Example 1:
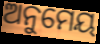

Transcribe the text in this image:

ଅନୁମେୟ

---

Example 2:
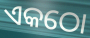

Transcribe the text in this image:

ଏକଠୋ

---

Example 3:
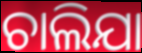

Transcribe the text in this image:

ଚାଲିଯା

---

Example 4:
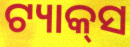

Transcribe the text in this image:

ଟ୍ୟାକ୍‌ସ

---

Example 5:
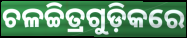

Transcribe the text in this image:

ଚଳଚ୍ଚିତ୍ରଗୁଡ଼ିକରେ